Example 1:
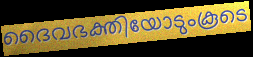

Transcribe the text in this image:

ദൈവഭക്തിയോടുംകൂടെ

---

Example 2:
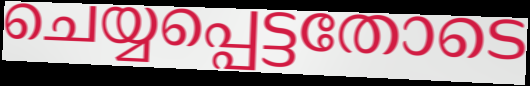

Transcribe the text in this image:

ചെയ്യപ്പെട്ടതോടെ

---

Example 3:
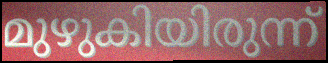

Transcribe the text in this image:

മുഴുകിയിരുന്ന്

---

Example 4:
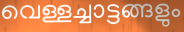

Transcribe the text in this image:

വെള്ളച്ചാട്ടങ്ങളും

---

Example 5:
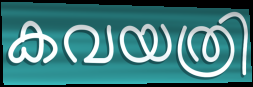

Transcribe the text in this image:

കവയത്രി